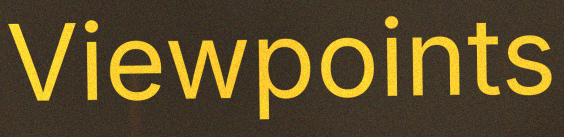
Viewpoints